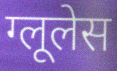
ग्लूलेस